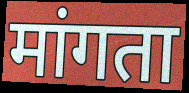
मांगता